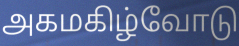
அகமகிழ்வோடு